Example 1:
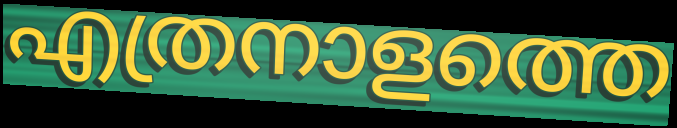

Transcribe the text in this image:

എത്രനാളത്തെ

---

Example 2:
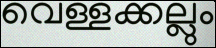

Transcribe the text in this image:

വെള്ളക്കല്ലും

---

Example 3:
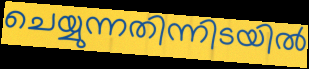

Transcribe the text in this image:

ചെയ്യുന്നതിന്നിടയിൽ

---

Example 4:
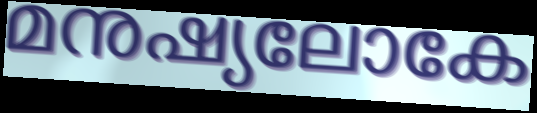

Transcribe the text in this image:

മനുഷ്യലോകേ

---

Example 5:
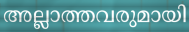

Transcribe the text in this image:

അല്ലാത്തവരുമായി